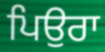
ਪਿਉਰਾ